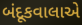
બંદૂકવાલાએ